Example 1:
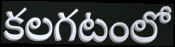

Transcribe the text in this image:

కలగటంలో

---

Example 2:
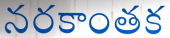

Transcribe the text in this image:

నరకాంతక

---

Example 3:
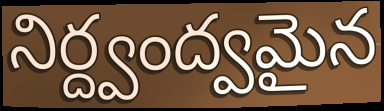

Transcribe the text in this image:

నిర్ద్వంద్వమైన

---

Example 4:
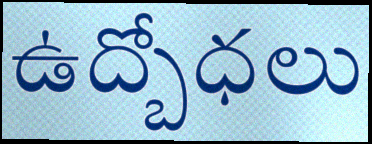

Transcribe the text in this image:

ఉద్బోధలు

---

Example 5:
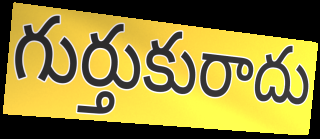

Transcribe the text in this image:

గుర్తుకురాదు